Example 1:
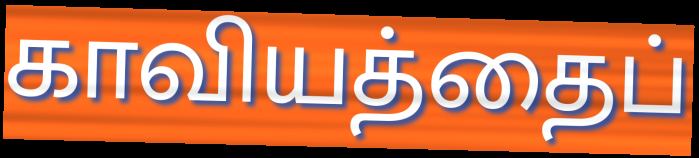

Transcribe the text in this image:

காவியத்தைப்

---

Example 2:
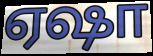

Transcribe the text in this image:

ஏஷா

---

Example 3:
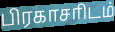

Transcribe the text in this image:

பிரகாசரிடம்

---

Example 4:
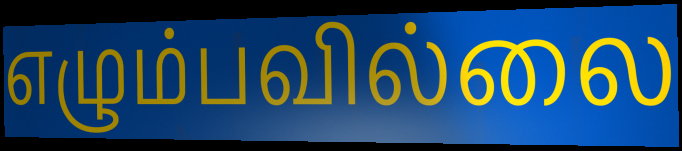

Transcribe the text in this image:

எழும்பவில்லை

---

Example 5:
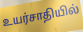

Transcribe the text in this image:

உயர்சாதியில்